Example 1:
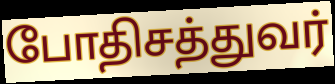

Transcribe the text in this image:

போதிசத்துவர்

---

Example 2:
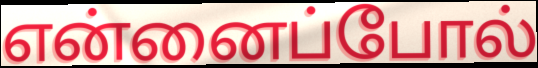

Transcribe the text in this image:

என்னைப்போல்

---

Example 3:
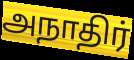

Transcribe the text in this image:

அநாதிர்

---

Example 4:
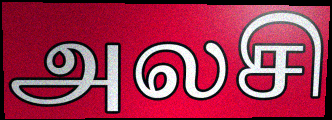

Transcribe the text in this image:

அலசி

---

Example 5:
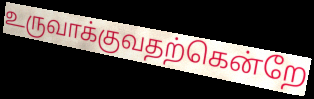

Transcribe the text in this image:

உருவாக்குவதற்கென்றே